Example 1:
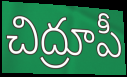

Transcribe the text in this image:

చిద్రూపీ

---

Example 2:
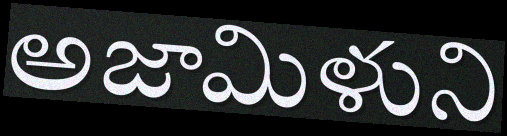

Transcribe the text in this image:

అజామిళుని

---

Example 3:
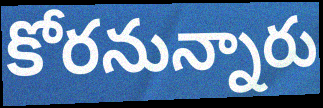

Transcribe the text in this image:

కోరనున్నారు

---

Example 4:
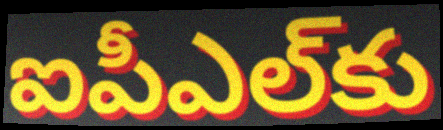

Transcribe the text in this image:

ఐపీఎల్‌కు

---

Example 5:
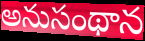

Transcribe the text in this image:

అనుసంథాన